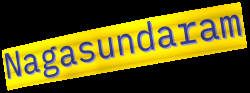
Nagasundaram